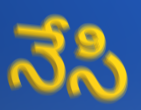
నేసి